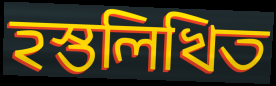
হস্তলিখিত